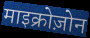
माइक्रोज़ोन